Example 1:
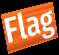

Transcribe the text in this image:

Flag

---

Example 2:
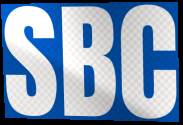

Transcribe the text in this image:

SBC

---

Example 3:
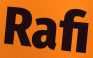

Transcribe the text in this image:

Rafi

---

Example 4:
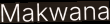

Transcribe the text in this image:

Makwana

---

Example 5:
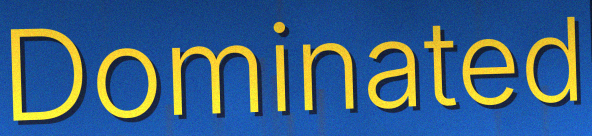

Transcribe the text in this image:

Dominated